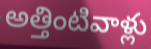
అత్తింటివాళ్లు